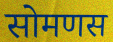
सोमणस